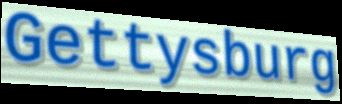
Gettysburg